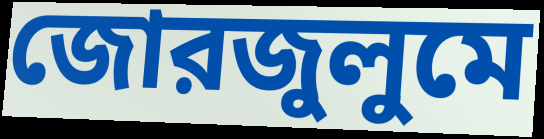
জোরজুলুমে